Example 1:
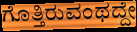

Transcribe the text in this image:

ಗೊತ್ತಿರುವಂಥದ್ದೇ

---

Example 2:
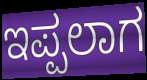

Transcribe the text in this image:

ಇಪ್ಪಲಾಗ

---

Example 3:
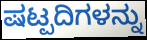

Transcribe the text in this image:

ಷಟ್ಪದಿಗಳನ್ನು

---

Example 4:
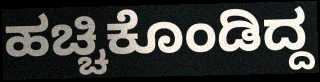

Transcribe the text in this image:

ಹಚ್ಚಿಕೊಂಡಿದ್ದ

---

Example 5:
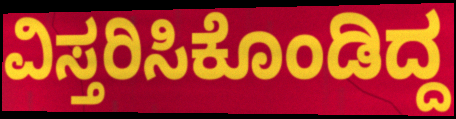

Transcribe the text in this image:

ವಿಸ್ತರಿಸಿಕೊಂಡಿದ್ದ